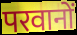
परवानों